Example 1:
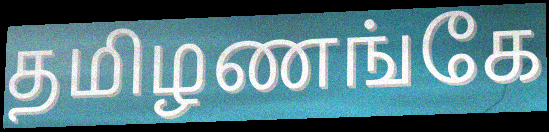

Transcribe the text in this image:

தமிழணங்கே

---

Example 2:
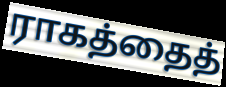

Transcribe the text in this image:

ராகத்தைத்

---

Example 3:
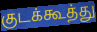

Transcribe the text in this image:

குடக்கூத்து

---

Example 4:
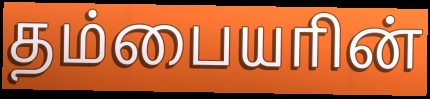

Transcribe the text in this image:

தம்பையரின்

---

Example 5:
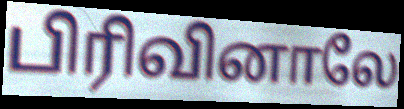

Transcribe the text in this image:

பிரிவினாலே